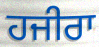
ਹਜੀਰਾ